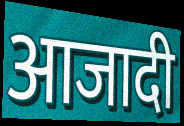
आजादी